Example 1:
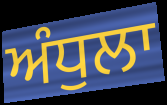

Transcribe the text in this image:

ਅੰਧੁਲਾ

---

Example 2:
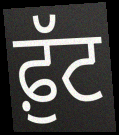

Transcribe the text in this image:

ਫ਼ੁੱਟ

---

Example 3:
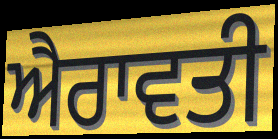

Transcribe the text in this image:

ਐਰਾਵਤੀ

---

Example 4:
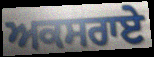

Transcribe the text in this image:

ਅਕਸਰਾਏ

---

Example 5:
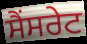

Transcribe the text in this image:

ਸੈਂਸਰੇਟ